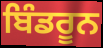
ਬਿੰਡਰੂਨ